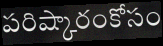
పరిష్కారంకోసం